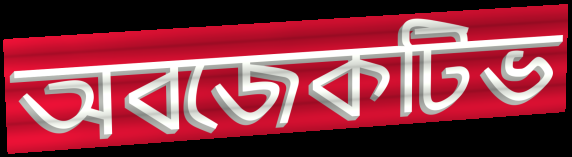
অবজেকটিভ